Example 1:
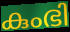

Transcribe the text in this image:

കുംഭി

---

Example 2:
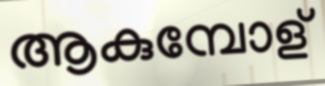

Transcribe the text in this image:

ആകുമ്പോള്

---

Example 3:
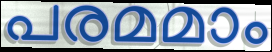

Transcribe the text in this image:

പരമമാം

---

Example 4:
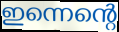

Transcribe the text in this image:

ഇന്നെന്റെ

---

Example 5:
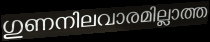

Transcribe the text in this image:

ഗുണനിലവാരമില്ലാത്ത